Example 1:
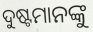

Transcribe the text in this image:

ଦୁଷ୍ଟମାନଙ୍କୁ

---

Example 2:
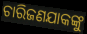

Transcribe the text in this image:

ଚାରିଜଣଯାକଙ୍କୁ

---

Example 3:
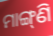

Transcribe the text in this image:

ମାଙ୍ଗ୍‌ଣି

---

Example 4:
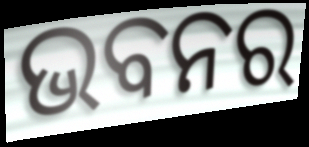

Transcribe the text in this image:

ଭବନର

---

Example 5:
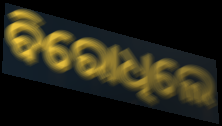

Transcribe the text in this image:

ବିରୋଧିଲେ